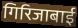
गिरिजाबाई